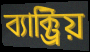
ব্যাক্ট্রিয়